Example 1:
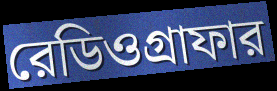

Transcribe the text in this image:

রেডিওগ্রাফার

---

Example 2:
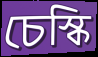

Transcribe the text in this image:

চেস্কি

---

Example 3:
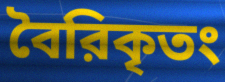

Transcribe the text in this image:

বৈরিকৃতং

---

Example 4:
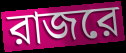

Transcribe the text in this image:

রাজরে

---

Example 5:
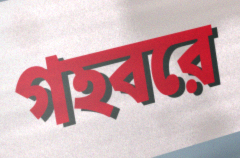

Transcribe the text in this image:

গহবরে